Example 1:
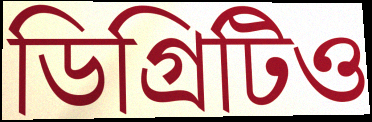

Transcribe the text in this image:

ডিগ্রিটিও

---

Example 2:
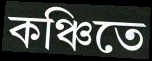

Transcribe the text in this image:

কঞ্চিতে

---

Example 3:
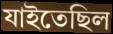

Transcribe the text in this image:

যাইতেছিল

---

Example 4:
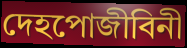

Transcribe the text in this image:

দেহপোজীবিনী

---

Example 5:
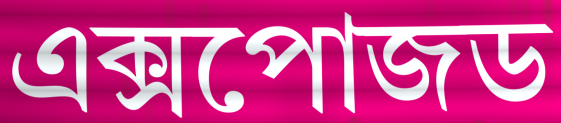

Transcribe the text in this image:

এক্সপোজড